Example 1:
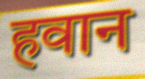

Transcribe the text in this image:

हवान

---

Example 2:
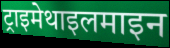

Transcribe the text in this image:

ट्राइमेथाइलमाइन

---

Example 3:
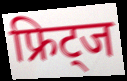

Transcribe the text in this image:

फ्रिट्ज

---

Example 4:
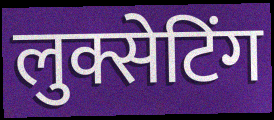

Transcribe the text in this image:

लुक्सेटिंग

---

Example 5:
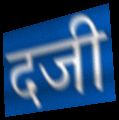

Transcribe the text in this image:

दजी